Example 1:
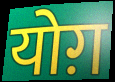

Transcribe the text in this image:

योग़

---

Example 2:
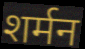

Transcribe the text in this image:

शर्मन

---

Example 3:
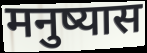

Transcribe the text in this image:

मनुष्यास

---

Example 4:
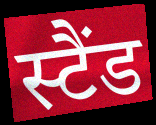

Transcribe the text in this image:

स्‍टैंड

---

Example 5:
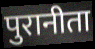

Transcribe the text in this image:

पुरानीता